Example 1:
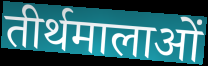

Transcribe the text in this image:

तीर्थमालाओं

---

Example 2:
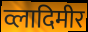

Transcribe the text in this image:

व्‍लादिमीर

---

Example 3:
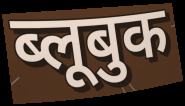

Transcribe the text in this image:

ब्लूबुक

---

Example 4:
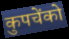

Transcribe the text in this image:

कुपचेंको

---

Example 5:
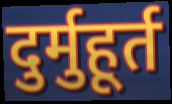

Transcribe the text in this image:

दुर्मुहूर्त